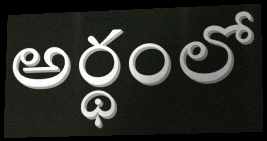
అర్థంలో